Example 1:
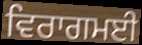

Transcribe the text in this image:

ਵਿਰਾਗਮਈ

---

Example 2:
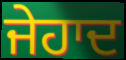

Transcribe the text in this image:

ਜੇਹਾਦ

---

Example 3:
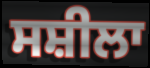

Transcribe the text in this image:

ਸਸ਼ੀਲਾ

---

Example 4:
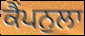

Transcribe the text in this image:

ਕੈਂਪਨੁਲਾ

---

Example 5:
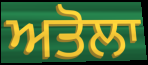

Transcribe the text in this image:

ਅਤੋਲਾ